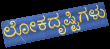
ಲೋಕದೃಷ್ಟಿಗಳು